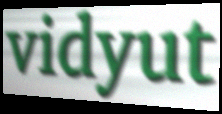
vidyut